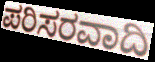
ಪರಿಸರವಾದಿ